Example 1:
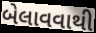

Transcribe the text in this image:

બેલાવવાથી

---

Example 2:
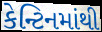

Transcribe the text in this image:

કેન્ટિનમાંથી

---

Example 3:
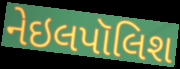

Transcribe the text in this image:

નેઇલપૉલિશ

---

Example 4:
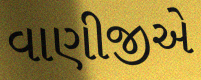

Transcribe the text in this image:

વાણીજીએ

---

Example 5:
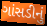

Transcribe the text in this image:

ગાંસડીનું